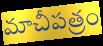
మాచీపత్రం